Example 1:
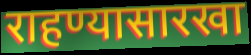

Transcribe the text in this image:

राहण्यासारखा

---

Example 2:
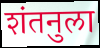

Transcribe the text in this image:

शंतनुला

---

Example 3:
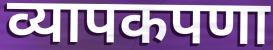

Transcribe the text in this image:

व्यापकपणा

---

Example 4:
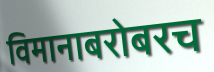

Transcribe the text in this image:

विमानाबरोबरच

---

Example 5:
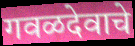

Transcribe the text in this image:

गवळदेवाचे